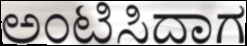
ಅಂಟಿಸಿದಾಗ